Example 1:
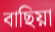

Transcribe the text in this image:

বাছিয়া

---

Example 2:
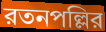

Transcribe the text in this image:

রতনপল্লির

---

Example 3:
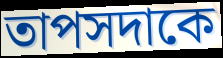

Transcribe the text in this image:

তাপসদাকে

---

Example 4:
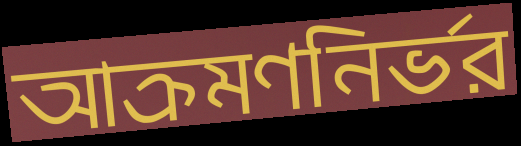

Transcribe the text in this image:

আক্রমণনির্ভর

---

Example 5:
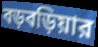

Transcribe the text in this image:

বড়বড়িয়ার